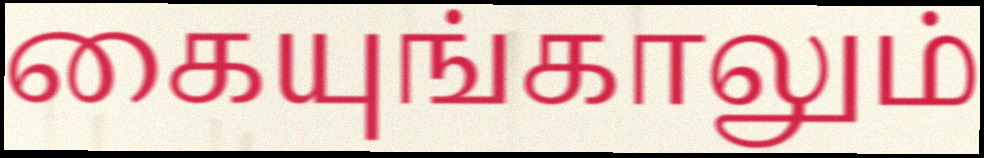
கையுங்காலும்